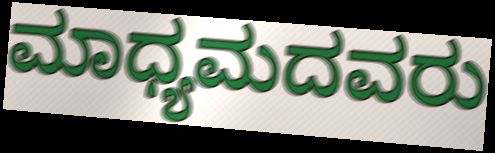
ಮಾಧ್ಯಮದವರು